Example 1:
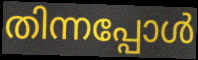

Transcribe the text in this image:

തിന്നപ്പോൾ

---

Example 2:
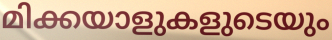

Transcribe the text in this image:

മിക്കയാളുകളുടെയും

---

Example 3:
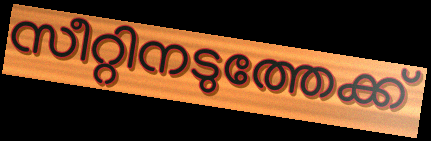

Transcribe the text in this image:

സീറ്റിനടുത്തേക്ക്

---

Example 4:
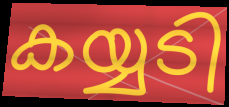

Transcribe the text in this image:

കയ്യടി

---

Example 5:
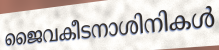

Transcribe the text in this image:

ജൈവകീടനാശിനികൾ